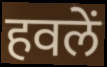
हवलें